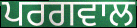
ਪਰਗਵਾਲ